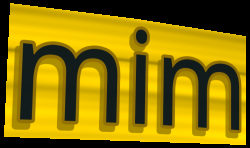
mim